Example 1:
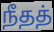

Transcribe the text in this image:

நீதத்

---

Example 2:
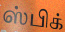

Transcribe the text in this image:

ஸ்பிக்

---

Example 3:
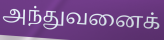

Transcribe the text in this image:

அந்துவனைக்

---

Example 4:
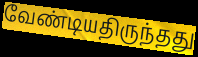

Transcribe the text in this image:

வேண்டியதிருந்தது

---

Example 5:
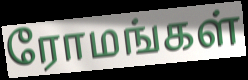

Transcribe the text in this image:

ரோமங்கள்